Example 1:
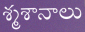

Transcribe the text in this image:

శ్మశానాలు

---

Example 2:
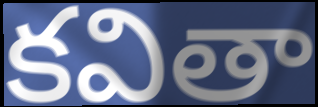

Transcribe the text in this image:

కవితా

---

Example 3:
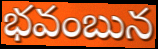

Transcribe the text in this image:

భవంబున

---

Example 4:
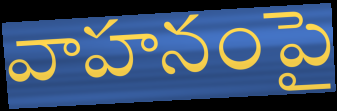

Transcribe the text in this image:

వాహనంపై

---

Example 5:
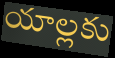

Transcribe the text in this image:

యాల్లకు